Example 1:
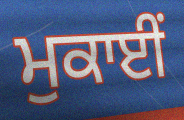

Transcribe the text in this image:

ਮੁਕਾਈਂ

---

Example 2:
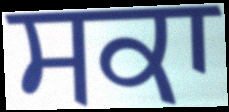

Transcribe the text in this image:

ਸਕਾ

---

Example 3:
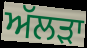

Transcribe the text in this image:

ਅੱਲੜਾ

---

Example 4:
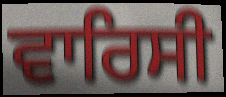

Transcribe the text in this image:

ਵਾਰਿਸੀ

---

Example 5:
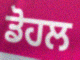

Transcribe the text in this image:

ਡੋਹਲ